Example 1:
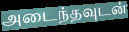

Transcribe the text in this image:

அடைந்தவுடன்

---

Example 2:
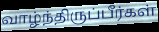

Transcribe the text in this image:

வாழ்ந்திருப்பீர்கள்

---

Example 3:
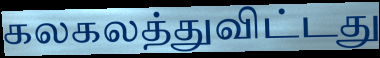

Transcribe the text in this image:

கலகலத்துவிட்டது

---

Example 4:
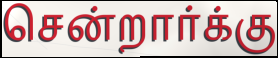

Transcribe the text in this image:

சென்றார்க்கு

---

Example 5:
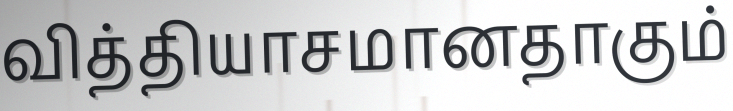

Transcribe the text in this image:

வித்தியாசமானதாகும்